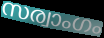
സര്വാംഗം